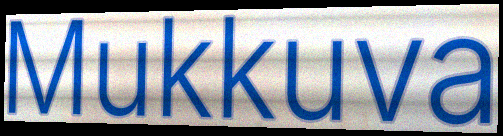
Mukkuva